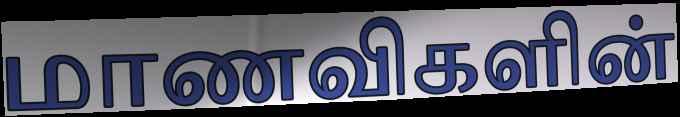
மாணவிகளின்